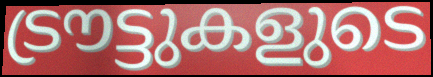
ട്രൗട്ടുകളുടെ